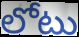
లోటు